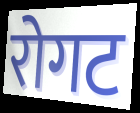
रोगट